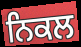
ਨਿਕਲ